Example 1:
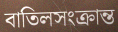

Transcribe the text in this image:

বাতিলসংক্রান্ত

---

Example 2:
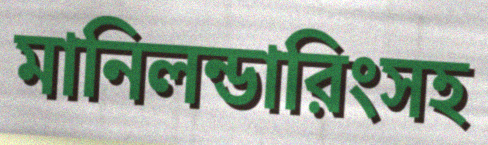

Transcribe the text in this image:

মানিলন্ডারিংসহ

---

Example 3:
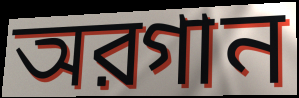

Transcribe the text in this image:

অরগান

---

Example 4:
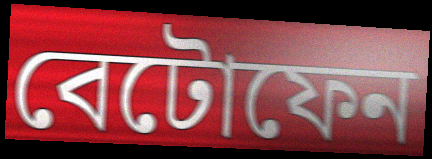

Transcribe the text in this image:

বেটোফেন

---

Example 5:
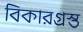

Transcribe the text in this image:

বিকারগ্রস্ত